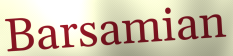
Barsamian